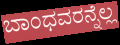
ಬಾಂಧವರನ್ನೆಲ್ಲ